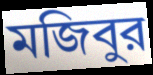
মজিবুর